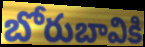
బోరుబావికి